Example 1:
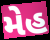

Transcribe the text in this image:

મેહ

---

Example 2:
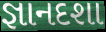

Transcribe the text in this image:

જ્ઞાનદશા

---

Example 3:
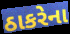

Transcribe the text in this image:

ઠાકરેના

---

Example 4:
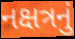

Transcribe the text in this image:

નક્ષત્રનું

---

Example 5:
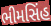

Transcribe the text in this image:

ભીમસિંહ